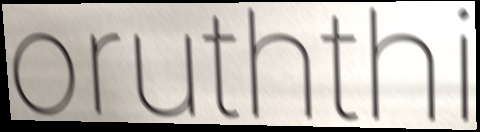
oruththi